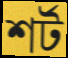
শর্ট